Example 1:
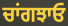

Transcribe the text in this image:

ਚਾਂਗਝਾਓ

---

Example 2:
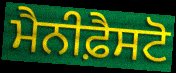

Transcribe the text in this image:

ਮੈਨੀਫ਼ੈਸਟੋ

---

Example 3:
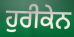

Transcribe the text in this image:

ਹੁਰੀਕੇਨ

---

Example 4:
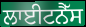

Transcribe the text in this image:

ਲਾਈਟਨੈੱਸ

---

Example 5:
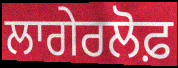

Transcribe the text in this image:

ਲਾਗੇਰਲੋਫ਼